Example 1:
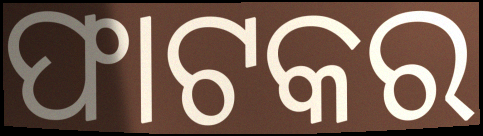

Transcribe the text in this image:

ଫାଟକର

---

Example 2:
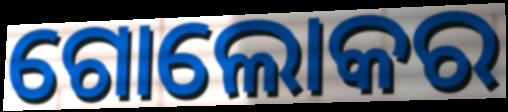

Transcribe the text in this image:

ଗୋଲୋକର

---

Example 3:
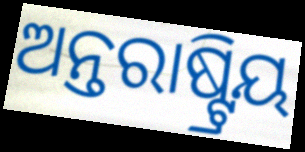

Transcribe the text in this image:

ଅନ୍ତରାଷ୍ଟ୍ରିୟ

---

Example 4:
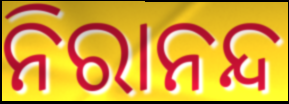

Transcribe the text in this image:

ନିରାନନ୍ଦ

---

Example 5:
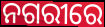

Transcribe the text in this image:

ନଗରୀରେ